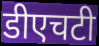
डीएचटी